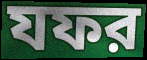
যফর